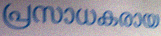
പ്രസാധകരായ